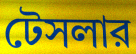
টেসলার